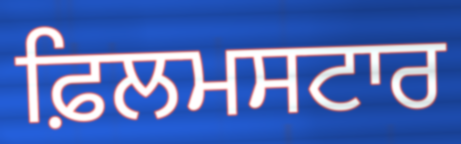
ਫ਼ਿਲਮਸਟਾਰ